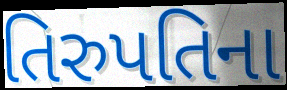
તિરુપતિના